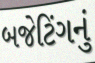
બજેટિંગનું